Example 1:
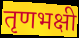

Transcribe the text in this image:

तृणभक्षी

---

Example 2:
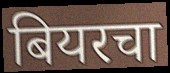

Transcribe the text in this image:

बियरचा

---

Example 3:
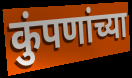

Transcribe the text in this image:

कुंपणांच्या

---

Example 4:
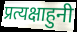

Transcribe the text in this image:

प्रत्यक्षाहुनी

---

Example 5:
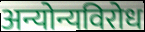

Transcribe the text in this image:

अन्योन्यविरोध